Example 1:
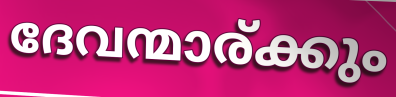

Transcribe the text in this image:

ദേവന്മാര്ക്കും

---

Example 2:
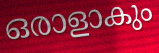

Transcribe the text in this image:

ഒരാളാകും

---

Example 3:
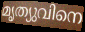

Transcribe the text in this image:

മൃത്യുവിനെ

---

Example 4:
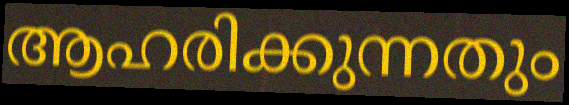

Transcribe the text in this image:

ആഹരിക്കുന്നതും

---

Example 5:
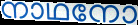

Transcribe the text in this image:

നാഥനോ